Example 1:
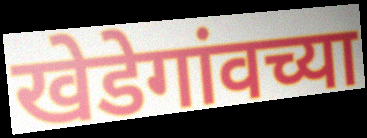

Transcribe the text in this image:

खेडेगांवच्या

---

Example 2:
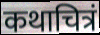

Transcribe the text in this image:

कथाचित्रं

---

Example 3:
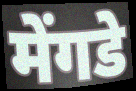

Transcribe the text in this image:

मेंगडे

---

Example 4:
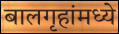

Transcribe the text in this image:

बालगृहांमध्ये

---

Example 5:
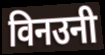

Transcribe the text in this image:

विनउनी